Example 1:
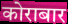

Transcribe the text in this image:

कोराबार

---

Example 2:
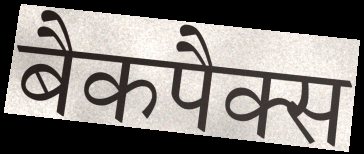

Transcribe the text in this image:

बैकपैक्स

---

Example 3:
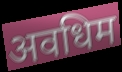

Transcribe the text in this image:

अवधिम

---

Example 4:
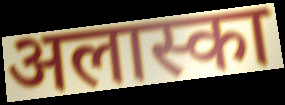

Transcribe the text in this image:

अलास्का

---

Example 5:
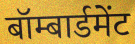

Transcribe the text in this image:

बॉम्बार्डमेंट